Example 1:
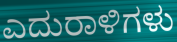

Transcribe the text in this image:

ಎದುರಾಳಿಗಳು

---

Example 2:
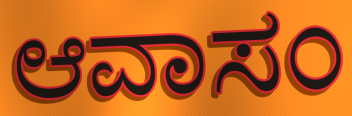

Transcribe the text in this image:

ಆವಾಸಂ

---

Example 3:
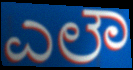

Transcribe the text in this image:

ಎಲೌ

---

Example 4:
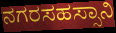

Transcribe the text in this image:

ನಗರಸಹಸ್ಸಾನಿ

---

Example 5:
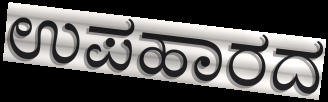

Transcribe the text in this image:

ಉಪಹಾರದ